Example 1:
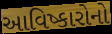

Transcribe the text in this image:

આવિષ્કારોનો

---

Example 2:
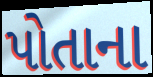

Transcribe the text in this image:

પોતાના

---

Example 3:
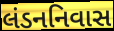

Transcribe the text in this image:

લંડનનિવાસ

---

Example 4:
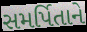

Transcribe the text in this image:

સમર્પિતાને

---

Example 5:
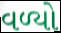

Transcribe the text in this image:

વળ્યો